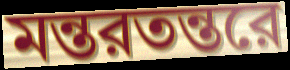
মন্তরতন্তরে